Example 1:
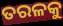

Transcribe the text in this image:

ତରଳକୁ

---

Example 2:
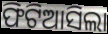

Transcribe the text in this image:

ଫିଟିଆସିଲା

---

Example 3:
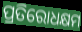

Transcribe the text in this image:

ପ୍ରତିରୋଧକ୍ଷମ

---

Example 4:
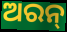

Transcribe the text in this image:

ଅରନ୍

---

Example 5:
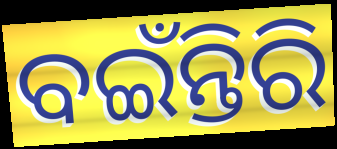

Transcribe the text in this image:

ବଇଁନ୍ତିରି